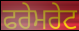
ਫਰੇਮਰੇਟ